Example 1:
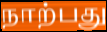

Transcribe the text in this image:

நாற்பது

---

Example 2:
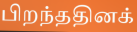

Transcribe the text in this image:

பிறந்ததினக்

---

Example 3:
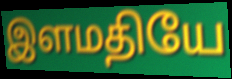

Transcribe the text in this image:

இளமதியே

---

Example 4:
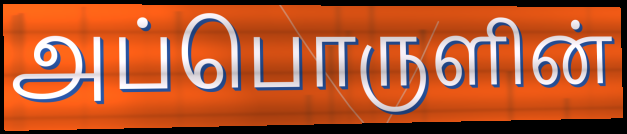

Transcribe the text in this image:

அப்பொருளின்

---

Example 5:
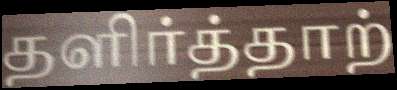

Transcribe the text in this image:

தளிர்த்தாற்